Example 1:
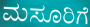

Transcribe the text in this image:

ಮಸೂರಿಗೆ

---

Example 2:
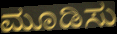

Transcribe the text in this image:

ಮೂಡಿಸು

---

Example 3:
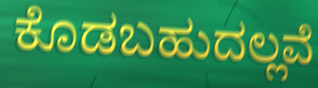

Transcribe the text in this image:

ಕೊಡಬಹುದಲ್ಲವೆ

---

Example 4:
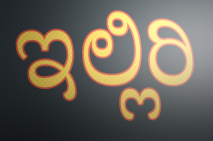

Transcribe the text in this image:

ಇಲ್ಲಿರಿ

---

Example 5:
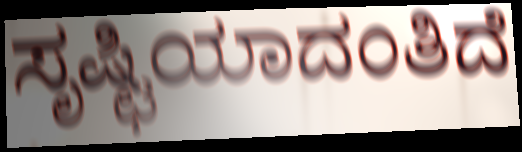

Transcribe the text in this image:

ಸೃಷ್ಟಿಯಾದಂತಿದೆ